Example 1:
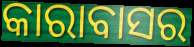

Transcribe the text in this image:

କାରାବାସର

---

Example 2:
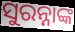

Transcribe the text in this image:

ସୁରନ୍ନାଙ୍କ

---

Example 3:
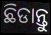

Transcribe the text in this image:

ଛିଡାନ୍ତୁ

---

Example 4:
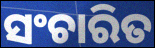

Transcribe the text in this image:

ସଂଚାରିତ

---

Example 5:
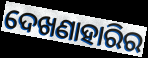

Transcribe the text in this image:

ଦେଖଣାହାରିର